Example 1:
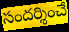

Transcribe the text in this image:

సందర్శించే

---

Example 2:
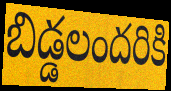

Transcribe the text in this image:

బిడ్డలందరికి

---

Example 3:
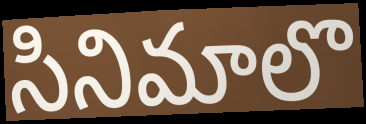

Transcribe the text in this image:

సినిమాలొ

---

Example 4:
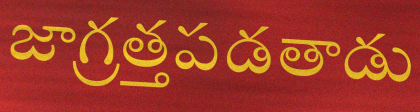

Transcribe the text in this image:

జాగ్రత్తపడతాడు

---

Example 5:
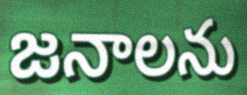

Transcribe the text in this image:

జనాలను